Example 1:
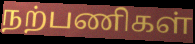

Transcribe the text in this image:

நற்பணிகள்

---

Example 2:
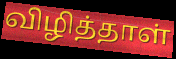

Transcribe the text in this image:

விழித்தாள்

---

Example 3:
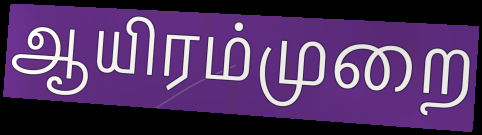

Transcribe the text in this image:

ஆயிரம்முறை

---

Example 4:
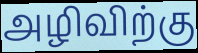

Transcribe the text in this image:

அழிவிற்கு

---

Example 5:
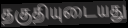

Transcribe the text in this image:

தகுதியுடையது